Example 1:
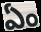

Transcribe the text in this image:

ఏం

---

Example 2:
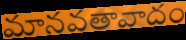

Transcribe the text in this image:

మానవతావాదం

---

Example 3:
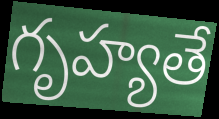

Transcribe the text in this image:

గృహ్యతే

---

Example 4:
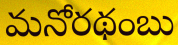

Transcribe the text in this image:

మనోరథంబు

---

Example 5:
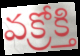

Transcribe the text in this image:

వక్రోక్తి